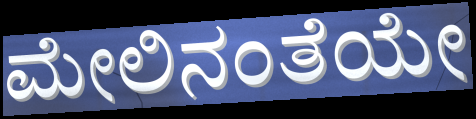
ಮೇಲಿನಂತೆಯೇ